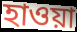
হাওয়া